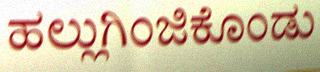
ಹಲ್ಲುಗಿಂಜಿಕೊಂಡು